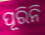
ପୂରିନି